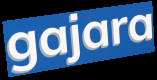
gajara